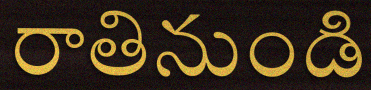
రాతినుండి